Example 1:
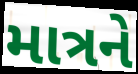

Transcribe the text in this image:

માત્રને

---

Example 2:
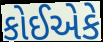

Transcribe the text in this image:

કોઈએકે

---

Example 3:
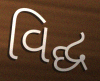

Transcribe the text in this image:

વિદ્ઘ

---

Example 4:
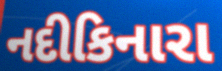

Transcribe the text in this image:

નદીકિનારા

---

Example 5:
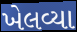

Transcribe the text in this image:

ખેલવ્યા